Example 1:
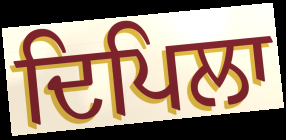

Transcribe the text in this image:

ਦਿਪਿਲਾ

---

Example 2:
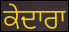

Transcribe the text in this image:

ਕੇਦਾਰਾ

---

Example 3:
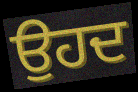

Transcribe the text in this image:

ਉਹਦ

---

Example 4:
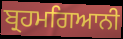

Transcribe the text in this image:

ਬ੍ਰਹਮਗਿਆਨੀ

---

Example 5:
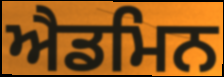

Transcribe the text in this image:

ਐਡਮਿਨ